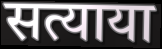
सत्याया